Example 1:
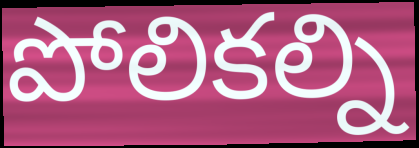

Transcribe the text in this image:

పోలికల్ని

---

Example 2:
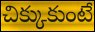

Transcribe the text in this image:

చిక్కుకుంటే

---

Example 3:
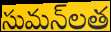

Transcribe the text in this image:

సుమన్‌లత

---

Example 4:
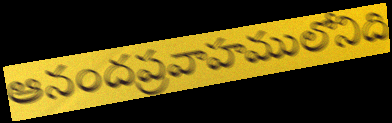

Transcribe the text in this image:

ఆనందప్రవాహములోనిది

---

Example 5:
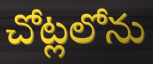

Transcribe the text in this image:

చోట్లలోను